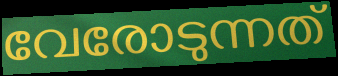
വേരോടുന്നത്